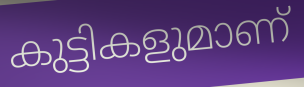
കുട്ടികളുമാണ്